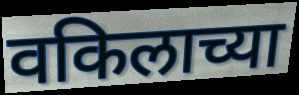
वकिलाच्या